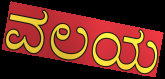
ವಲಯ